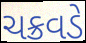
ચક્રવડે